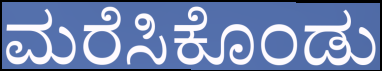
ಮರೆಸಿಕೊಂಡು